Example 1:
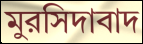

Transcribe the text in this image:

মুরসিদাবাদ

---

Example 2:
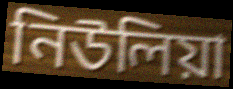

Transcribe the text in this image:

নিউলিয়া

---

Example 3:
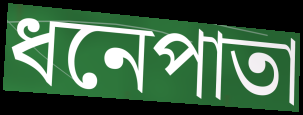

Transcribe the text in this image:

ধনেপাতা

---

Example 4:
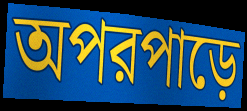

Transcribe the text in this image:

অপরপাড়ে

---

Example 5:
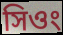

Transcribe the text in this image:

সিওং